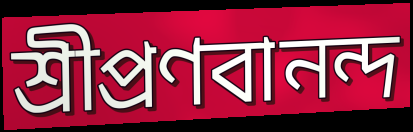
শ্রীপ্রণবানন্দ